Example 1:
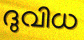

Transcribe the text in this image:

ദുവിധ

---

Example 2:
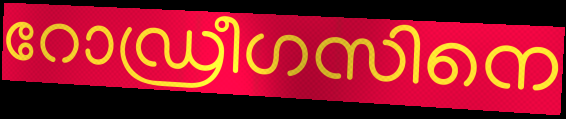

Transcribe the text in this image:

റോഡ്രീഗസിനെ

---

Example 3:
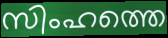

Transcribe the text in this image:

സിംഹത്തെ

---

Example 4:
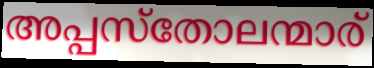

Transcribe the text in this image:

അപ്പസ്തോലന്മാര്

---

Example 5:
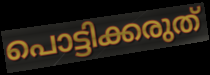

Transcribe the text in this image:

പൊട്ടിക്കരുത്